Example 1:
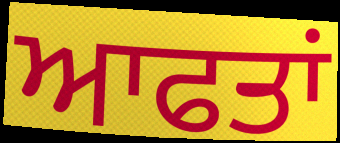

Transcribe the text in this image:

ਆਫਤਾਂ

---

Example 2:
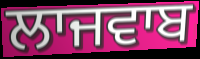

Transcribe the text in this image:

ਲਾਜਵਾਬ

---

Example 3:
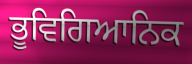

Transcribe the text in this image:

ਭੂਵਿਗਿਆਨਿਕ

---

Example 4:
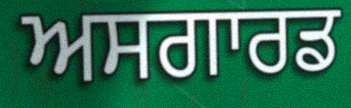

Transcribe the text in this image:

ਅਸਗਾਰਡ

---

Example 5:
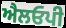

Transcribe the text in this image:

ਐਲਓਪੀ